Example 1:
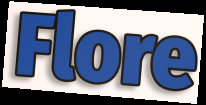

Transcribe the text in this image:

Flore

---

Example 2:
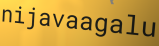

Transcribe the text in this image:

nijavaagalu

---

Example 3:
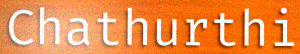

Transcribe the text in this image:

Chathurthi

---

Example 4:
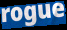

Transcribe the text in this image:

rogue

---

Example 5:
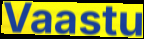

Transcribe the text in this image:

Vaastu